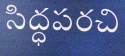
సిద్ధపరచి